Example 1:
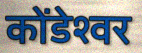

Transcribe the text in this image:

कोंडेश्वर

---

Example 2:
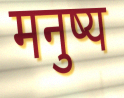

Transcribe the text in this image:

मनुष्य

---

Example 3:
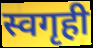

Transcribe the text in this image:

स्वगृही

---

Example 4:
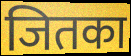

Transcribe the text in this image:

जितका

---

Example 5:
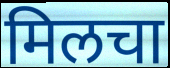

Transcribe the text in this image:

मिलचा